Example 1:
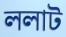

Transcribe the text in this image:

ললাট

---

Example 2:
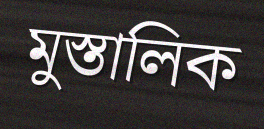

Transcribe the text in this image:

মুস্তালিক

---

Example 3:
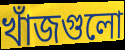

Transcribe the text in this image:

খাঁজগুলো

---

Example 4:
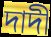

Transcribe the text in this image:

দাদী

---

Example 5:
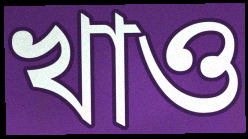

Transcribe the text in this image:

খাও